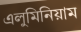
এলুমিনিয়াম